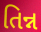
તિન્ન